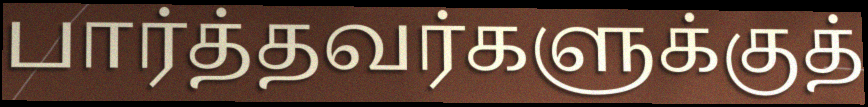
பார்த்தவர்களுக்குத்